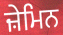
ਜ਼ੇਮਿਨ